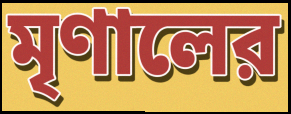
মৃণালের